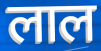
लाल